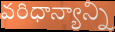
వరిధాన్యాన్ని